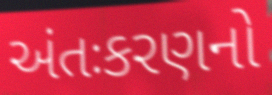
અંતઃકરણનો